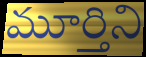
మూర్తిని